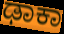
ಢಾಕಾ